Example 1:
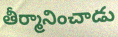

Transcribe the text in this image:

తీర్మానించాడు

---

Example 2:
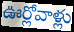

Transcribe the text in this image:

ఊర్లోవాళ్లు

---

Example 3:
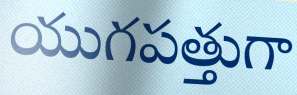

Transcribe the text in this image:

యుగపత్తుగా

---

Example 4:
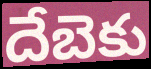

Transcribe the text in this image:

దేబెకు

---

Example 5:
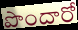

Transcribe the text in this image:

పొందారో